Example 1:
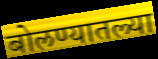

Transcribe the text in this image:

बोलण्यातल्या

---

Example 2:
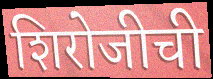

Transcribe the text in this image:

शिरोजीची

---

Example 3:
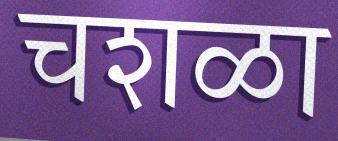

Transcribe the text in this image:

चशळा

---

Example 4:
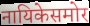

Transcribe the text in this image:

नायिकेसमोर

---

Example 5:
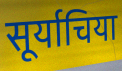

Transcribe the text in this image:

सूर्याचिया